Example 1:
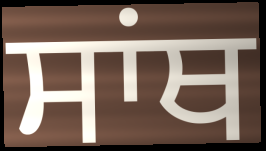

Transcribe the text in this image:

ਸਾਂਥ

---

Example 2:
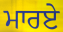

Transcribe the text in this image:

ਮਾਰਏ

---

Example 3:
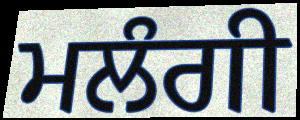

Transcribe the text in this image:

ਮਲੰਗੀ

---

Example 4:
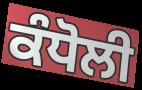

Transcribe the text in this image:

ਕੰਧੋਲੀ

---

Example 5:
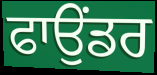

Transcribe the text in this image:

ਫਾਉਂਡਰ